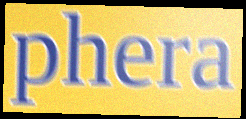
phera